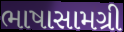
ભાષાસામગ્રી